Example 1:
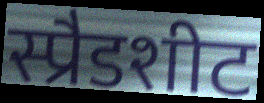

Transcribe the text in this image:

स्प्रैडशीट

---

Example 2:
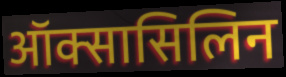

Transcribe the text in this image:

ऑक्सासिलिन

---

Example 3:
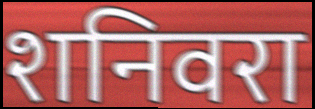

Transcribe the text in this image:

शनिवरा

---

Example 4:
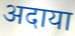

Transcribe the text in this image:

अदाया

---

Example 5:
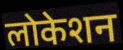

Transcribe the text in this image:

लोकेशन